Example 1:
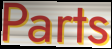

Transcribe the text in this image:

Parts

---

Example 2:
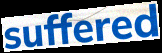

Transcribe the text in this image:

suffered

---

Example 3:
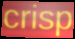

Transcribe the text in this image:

crisp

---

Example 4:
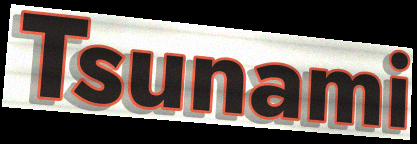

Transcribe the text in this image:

Tsunami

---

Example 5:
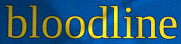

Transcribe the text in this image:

bloodline